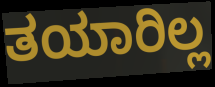
ತಯಾರಿಲ್ಲ